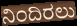
ನಿಂದಿರಲು